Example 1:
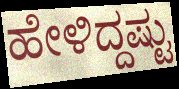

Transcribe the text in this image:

ಹೇಳಿದ್ದಷ್ಟು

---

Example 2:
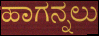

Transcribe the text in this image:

ಹಾಗನ್ನಲು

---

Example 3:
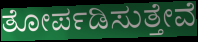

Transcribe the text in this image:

ತೋರ್ಪಡಿಸುತ್ತೇವೆ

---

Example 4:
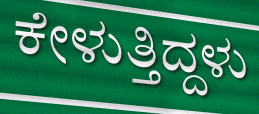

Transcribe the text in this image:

ಕೇಳುತ್ತಿದ್ದಳು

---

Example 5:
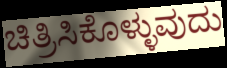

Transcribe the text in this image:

ಚಿತ್ರಿಸಿಕೊಳ್ಳುವುದು